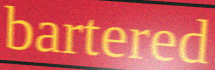
bartered